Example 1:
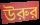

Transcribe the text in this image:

উরুর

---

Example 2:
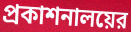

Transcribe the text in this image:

প্রকাশনালয়ের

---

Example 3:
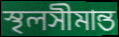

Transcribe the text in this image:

স্থলসীমান্ত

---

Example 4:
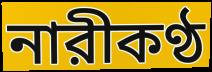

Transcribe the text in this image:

নারীকণ্ঠ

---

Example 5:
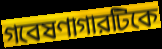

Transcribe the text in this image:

গবেষণাগারটিকে